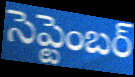
సెప్టెంబర్